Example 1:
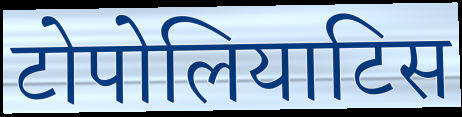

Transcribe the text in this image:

टोपोलियाटिस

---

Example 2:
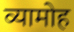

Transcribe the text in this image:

व्यामोह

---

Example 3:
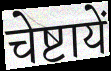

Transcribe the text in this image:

चेष्टायें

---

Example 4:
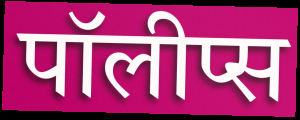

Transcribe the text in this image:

पॉलीप्स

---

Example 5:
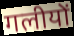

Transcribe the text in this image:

गलीयों